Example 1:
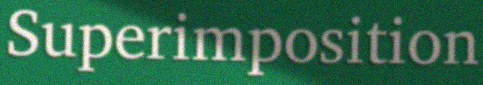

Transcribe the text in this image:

Superimposition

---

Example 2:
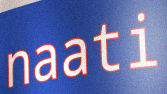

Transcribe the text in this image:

naati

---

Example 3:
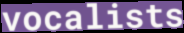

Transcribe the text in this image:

vocalists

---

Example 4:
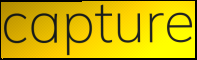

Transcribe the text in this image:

capture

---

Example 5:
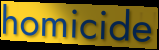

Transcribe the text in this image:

homicide